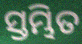
ସ୍ତମ୍ଭିତ